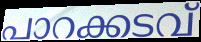
പാറക്കടവ്